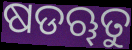
ଷଡୠତୁ